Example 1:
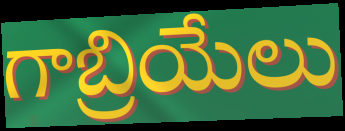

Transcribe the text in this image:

గాబ్రియేలు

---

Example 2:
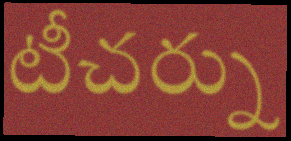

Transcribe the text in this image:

టీచర్ను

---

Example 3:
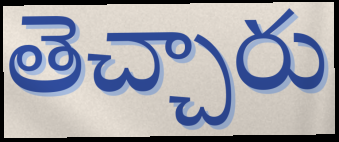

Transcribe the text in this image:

తెచ్చారు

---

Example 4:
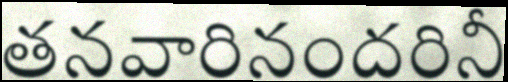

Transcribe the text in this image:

తనవారినందరినీ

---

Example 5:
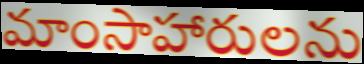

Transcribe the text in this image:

మాంసాహారులను